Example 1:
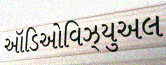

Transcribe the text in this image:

ઑડિઓવિઝ્યુઅલ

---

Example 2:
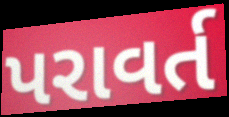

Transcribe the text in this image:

પરાવર્ત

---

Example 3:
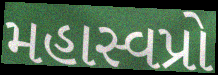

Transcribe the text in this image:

મહાસ્વપ્રો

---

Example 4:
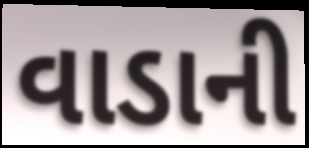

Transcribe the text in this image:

વાડાની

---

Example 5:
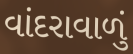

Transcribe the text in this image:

વાંદરાવાળું